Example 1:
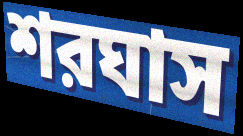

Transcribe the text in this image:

শরঘাস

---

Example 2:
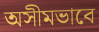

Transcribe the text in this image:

অসীমভাবে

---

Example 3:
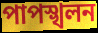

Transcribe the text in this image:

পাপস্খলন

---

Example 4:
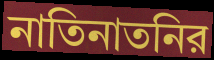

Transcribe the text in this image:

নাতিনাতনির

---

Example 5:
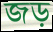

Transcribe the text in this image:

জড়